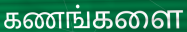
கணங்களை